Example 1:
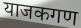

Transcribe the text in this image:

याजकगण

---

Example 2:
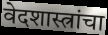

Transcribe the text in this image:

वेदशास्त्रांचा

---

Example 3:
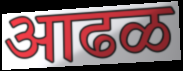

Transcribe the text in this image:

आढळ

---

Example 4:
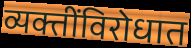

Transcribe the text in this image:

व्यक्तींविरोधात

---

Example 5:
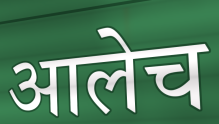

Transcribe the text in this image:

आलेच